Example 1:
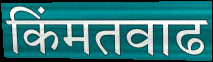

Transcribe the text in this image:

किंमतवाढ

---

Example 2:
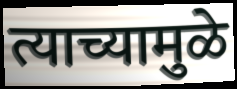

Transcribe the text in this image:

त्याच्यामुळे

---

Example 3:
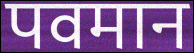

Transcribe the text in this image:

पवमान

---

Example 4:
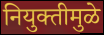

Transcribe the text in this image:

नियुक्तीमुळे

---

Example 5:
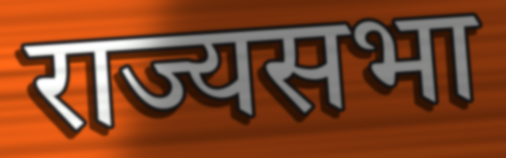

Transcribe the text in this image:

राज्यसभा